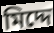
মিদ্দে